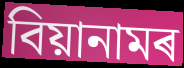
বিয়ানামৰ